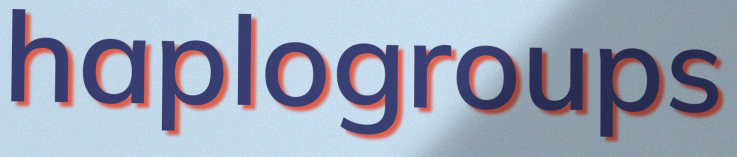
haplogroups